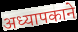
अध्यापकाने